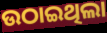
ଉଠାଇଥିଲା